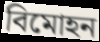
বিমোহন